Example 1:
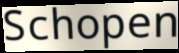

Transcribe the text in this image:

Schopen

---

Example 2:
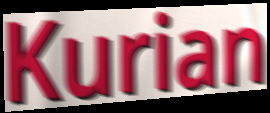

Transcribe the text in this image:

Kurian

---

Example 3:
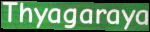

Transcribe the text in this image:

Thyagaraya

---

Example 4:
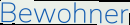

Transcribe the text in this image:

Bewohner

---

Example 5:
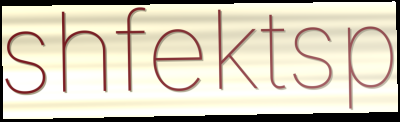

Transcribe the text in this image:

shfektsp